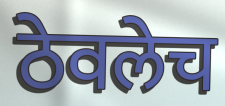
ठेवलेच